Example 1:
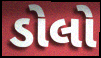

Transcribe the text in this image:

ડોલો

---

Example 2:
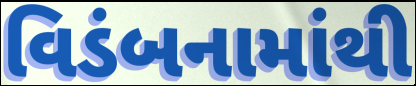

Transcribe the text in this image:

વિડંબનામાંથી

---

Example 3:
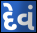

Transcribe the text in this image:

દેવં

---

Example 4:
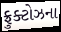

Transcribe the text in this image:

ફ્રુક્ટોઝના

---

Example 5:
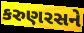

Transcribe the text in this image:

કરુણરસને